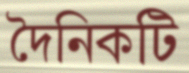
দৈনিকটি